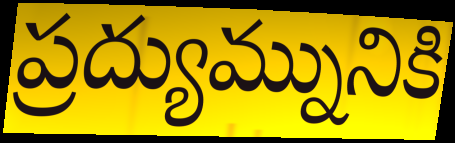
ప్రద్యుమ్నునికి